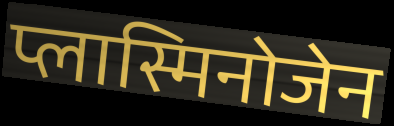
प्लास्मिनोजेन